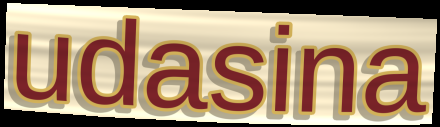
udasina